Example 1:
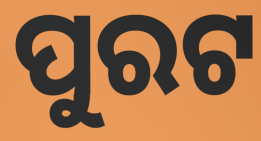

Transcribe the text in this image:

ପୁରଟ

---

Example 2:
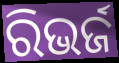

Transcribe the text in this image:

ରିଭର୍ଜ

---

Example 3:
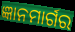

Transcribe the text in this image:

ଜ୍ଞାନମାର୍ଗର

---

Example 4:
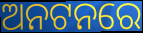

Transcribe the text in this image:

ଅନଟନରେ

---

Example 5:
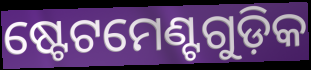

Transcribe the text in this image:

ଷ୍ଟେଟମେଣ୍ଟଗୁଡ଼ିକ